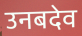
उनबदेव